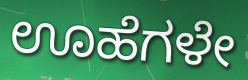
ಊಹೆಗಳೇ